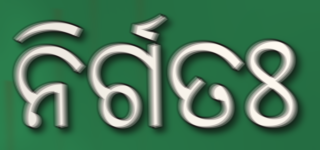
ନିର୍ଗତଃ